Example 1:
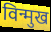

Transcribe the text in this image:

विन्मुख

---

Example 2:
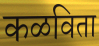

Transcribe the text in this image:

कळविता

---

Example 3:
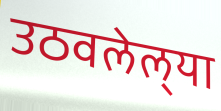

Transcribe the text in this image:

उठवलेल्या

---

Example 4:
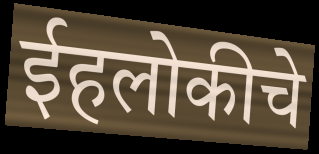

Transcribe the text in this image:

ईहलोकीचे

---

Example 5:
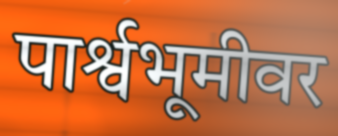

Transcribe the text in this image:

पार्श्वभूमीवर